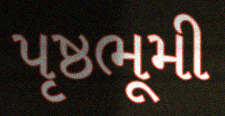
પૃષ્ઠભૂમી